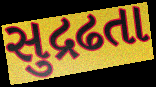
સુદ્રઢતા